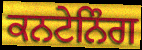
ਕਨਟੇਨਿੰਗ